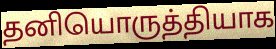
தனியொருத்தியாக